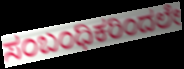
ಸಂಬಂಧಿಕರಿಂದಲೇ